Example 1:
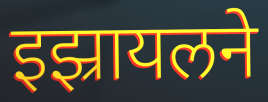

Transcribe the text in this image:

इझ्रायलने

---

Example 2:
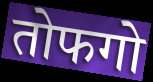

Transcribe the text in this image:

तोफगो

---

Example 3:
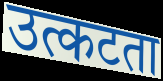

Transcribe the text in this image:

उत्कटता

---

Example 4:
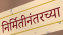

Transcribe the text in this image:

निर्मितीनंतरच्या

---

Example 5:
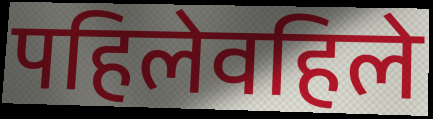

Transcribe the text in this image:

पहिलेवहिले